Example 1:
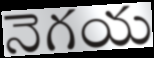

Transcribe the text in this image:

నెగయ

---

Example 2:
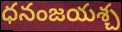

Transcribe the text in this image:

ధనంజయశ్చ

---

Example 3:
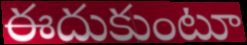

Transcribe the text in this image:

ఈదుకుంటూ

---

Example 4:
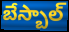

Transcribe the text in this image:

బేస్బాల్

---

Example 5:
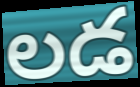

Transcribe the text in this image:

లడ